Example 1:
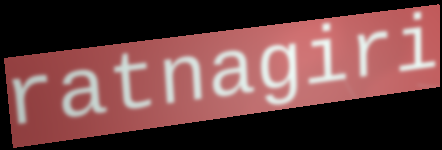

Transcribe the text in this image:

ratnagiri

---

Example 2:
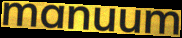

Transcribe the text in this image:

manuum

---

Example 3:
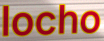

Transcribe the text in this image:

locho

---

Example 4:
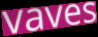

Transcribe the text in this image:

vaves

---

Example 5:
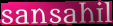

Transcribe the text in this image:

sansahil